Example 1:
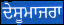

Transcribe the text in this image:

ਦੇਸੂਮਾਜਰਾ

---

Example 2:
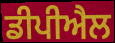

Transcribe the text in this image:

ਡੀਪੀਐਲ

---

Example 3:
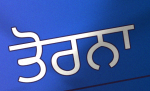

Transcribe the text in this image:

ਤੋਰਨਾ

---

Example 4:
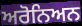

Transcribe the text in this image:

ਅਰੋਨਿਅਨ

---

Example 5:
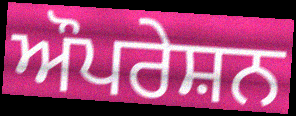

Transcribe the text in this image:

ਔਪਰੇਸ਼ਨ